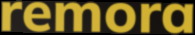
remora